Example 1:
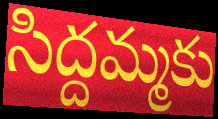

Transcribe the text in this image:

సిద్దమ్మకు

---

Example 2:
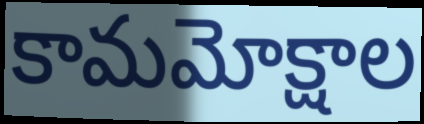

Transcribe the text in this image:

కామమోక్షాల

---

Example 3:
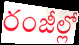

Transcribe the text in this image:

రంజీల్లో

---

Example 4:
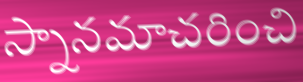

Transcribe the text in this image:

స్నానమాచరించి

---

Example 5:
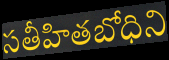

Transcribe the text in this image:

సతీహితబోధిని